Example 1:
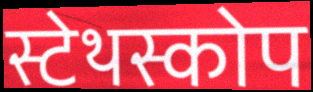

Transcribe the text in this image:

स्टेथस्कोप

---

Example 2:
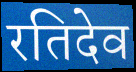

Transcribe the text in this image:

रतिदेव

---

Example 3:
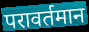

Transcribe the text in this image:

परावर्तमान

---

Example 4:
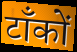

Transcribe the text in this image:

टाँकों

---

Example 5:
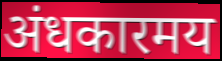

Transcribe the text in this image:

अंधकारमय